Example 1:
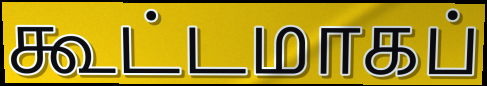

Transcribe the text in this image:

கூட்டமாகப்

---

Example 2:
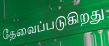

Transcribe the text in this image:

தேவைப்படுகிறது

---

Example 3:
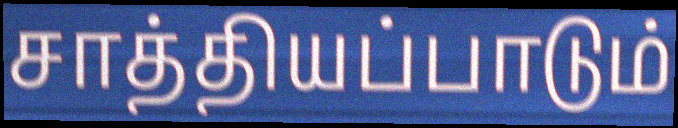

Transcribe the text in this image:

சாத்தியப்பாடும்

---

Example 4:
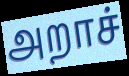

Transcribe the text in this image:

அறாச்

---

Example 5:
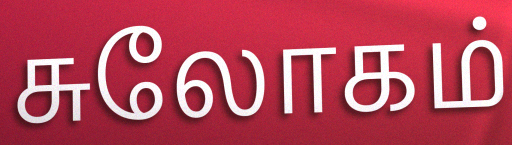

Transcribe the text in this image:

சுலோகம்